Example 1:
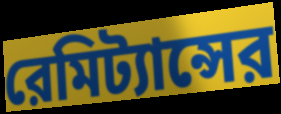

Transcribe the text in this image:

রেমিট্যান্সের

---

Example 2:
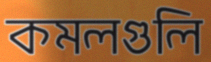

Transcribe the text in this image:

কমলগুলি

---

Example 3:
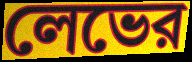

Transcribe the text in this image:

লেভের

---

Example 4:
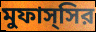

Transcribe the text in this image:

মুফাস্সির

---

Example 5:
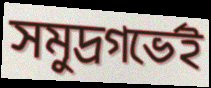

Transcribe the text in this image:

সমুদ্রগর্ভেই